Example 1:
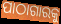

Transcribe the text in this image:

ପାଠାଗାରକୁ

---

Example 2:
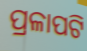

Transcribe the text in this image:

ପ୍ରଳାପଟି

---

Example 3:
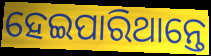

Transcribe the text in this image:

ହେଇପାରିଥାନ୍ତେ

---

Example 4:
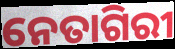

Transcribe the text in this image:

ନେତାଗିରୀ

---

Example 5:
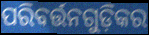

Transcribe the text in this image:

ପରିବର୍ତ୍ତନଗୁଡ଼ିକର